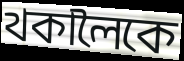
থকালৈকে